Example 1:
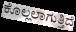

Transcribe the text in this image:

ಕೊಲ್ಲಲಾಗುತ್ತಿದೆ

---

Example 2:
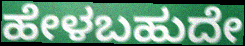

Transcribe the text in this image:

ಹೇಳಬಹುದೇ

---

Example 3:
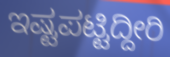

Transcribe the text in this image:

ಇಷ್ಟಪಟ್ಟಿದ್ದೀರಿ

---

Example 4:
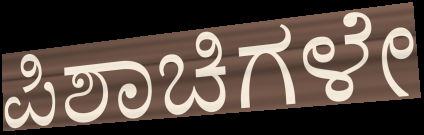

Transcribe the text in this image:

ಪಿಶಾಚಿಗಳೇ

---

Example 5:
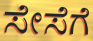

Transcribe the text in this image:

ಸೇಸೆಗೆ